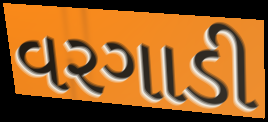
વરગાડી